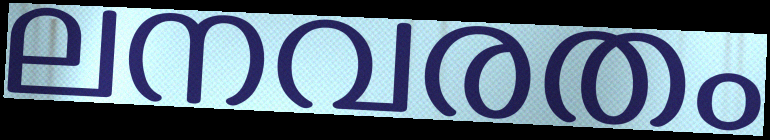
ലനവരതം